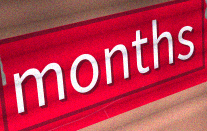
months